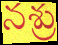
నశ్రు